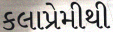
કલાપ્રેમીથી